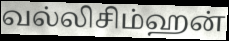
வல்லிசிம்ஹன்